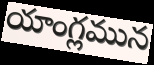
యాంగ్లమున